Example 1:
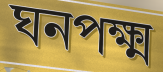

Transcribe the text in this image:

ঘনপক্ষ্ম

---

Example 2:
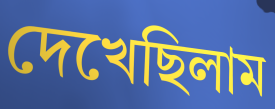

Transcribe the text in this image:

দেখেছিলাম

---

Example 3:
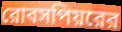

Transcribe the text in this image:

রোবসপিয়রের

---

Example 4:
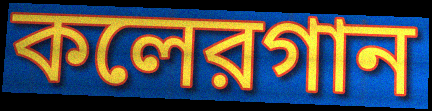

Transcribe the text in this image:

কলেরগান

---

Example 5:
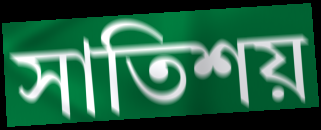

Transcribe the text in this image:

সাতিশয়